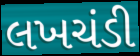
લખચંડી